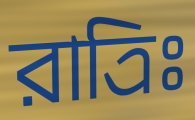
রাত্রিঃ